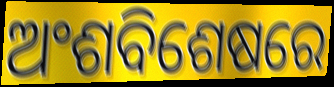
ଅଂଶବିଶେଷରେ